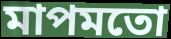
মাপমতো